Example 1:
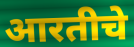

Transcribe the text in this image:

आरतीचे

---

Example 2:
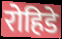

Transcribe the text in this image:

रोहिडे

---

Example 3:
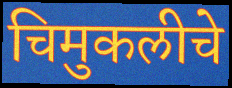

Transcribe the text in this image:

चिमुकलीचे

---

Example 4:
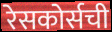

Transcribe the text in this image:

रेसकोर्सची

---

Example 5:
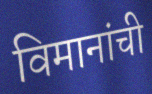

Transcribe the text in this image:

विमानांची